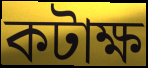
কটাক্ষ